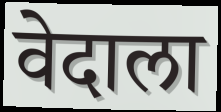
वेदाला